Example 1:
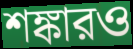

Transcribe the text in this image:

শঙ্কারও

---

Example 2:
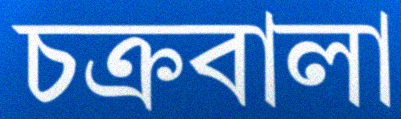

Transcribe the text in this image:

চক্রবালা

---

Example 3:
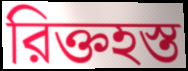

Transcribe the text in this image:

রিক্তহস্ত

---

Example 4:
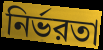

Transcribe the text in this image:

নির্ভরতা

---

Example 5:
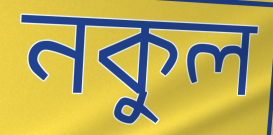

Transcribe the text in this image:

নকুল